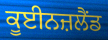
ਕੂਈਨਜ਼ਲੈਂਡ